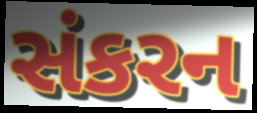
સંકરન